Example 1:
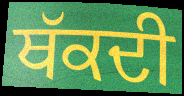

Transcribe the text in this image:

ਥੱਕਦੀ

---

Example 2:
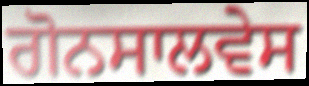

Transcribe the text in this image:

ਗੋਨਸਾਲਵੇਸ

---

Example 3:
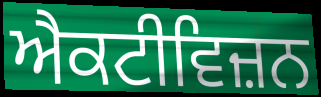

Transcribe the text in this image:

ਐਕਟੀਵਿਜ਼ਨ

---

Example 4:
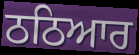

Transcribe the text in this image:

ਠਠਿਆਰ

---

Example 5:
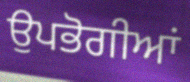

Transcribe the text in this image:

ਉਪਭੋਗੀਆਂ